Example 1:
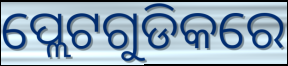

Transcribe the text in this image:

ପ୍ଲେଟଗୁଡିକରେ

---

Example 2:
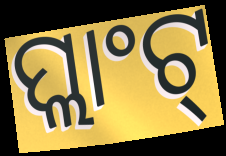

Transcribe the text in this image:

ପ୍ଲାଂଟ୍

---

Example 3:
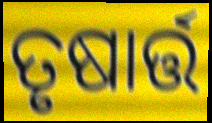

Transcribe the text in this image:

ତୃଷାର୍ତ୍ତ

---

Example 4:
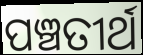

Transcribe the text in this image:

ପଞ୍ଚତୀର୍ଥ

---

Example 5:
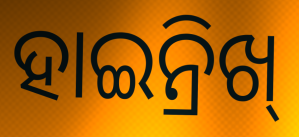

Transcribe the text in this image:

ହାଇନ୍ରିଖ୍